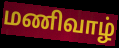
மணிவாழ்